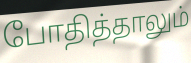
போதித்தாலும்